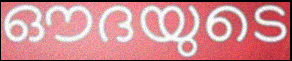
ഔദയുടെ